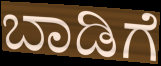
ಬಾಡಿಗೆ